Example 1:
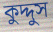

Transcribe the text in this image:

কুদ্দুস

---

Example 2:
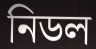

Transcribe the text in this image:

নিডল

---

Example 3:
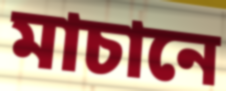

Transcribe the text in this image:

মাচানে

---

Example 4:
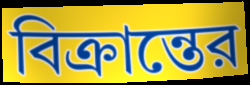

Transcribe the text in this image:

বিক্রান্তের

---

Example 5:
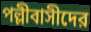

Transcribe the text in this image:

পল্লীবাসীদের